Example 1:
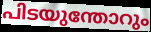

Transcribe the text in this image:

പിടയുന്തോറും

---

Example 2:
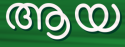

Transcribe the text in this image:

ആയ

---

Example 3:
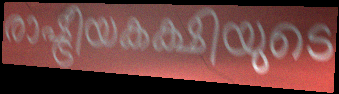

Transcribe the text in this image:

രാഷ്ട്രീയകക്ഷിയുടെ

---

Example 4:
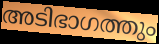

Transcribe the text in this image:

അടിഭാഗത്തും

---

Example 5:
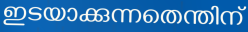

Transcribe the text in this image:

ഇടയാക്കുന്നതെന്തിന്